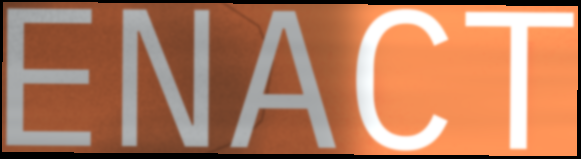
ENACT